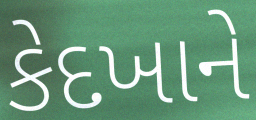
કેદખાને